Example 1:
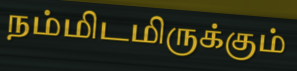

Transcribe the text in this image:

நம்மிடமிருக்கும்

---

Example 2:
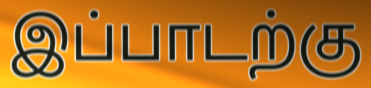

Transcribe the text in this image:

இப்பாடற்கு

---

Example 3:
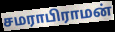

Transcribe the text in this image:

சமராபிராமன்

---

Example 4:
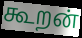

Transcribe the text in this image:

கூறன்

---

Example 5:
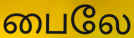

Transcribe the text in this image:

பைலே